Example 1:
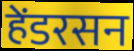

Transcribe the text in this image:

हेंडरसन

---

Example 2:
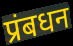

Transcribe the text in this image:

प्रंबधन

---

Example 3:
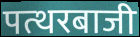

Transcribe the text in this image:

पत्थरबाजी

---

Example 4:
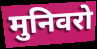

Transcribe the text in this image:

मुनिवरो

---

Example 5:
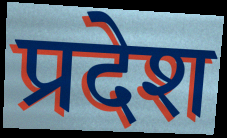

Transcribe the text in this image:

प्रदेश